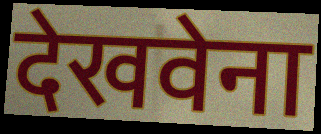
देखवेना